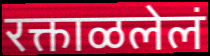
रक्ताळलेलं